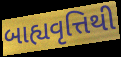
બાહ્યવૃત્તિથી